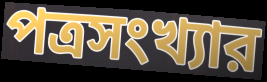
পত্রসংখ্যার